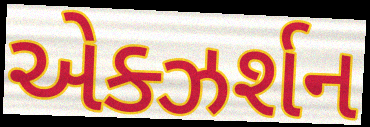
એક્ઝર્શન